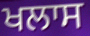
ਖਲਾਸ